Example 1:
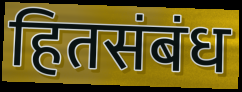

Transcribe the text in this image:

हितसंबंध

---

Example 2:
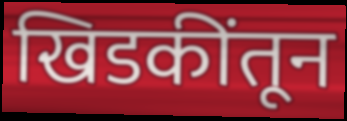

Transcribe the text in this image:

खिडकींतून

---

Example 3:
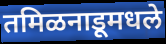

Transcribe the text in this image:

तमिळनाडूमधले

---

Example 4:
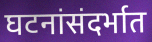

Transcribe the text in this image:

घटनांसंदर्भात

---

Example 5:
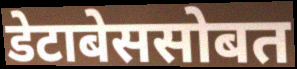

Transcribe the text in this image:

डेटाबेससोबत